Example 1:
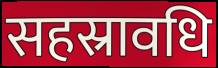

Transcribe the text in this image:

सहस्रावधि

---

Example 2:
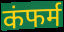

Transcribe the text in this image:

कंफर्म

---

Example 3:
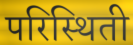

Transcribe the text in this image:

परिस्थिती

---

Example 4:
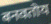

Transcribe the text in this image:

बनवतोय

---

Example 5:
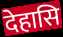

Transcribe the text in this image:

देहासि